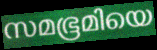
സമഭൂമിയെ